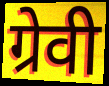
ग्रेवी